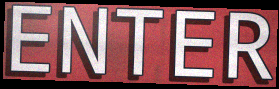
ENTER